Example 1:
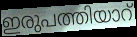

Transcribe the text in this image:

ഇരുപത്തിയാറ്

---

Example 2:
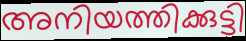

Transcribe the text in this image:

അനിയത്തിക്കുട്ടി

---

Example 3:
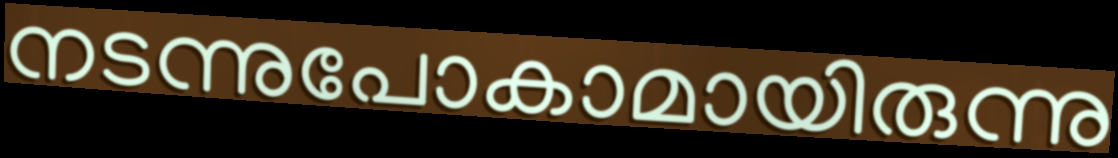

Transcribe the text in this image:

നടന്നുപോകാമായിരുന്നു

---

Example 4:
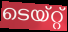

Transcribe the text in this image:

ടെയ്റ്റ്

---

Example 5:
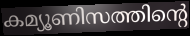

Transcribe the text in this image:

കമ്യൂണിസത്തിന്റെ